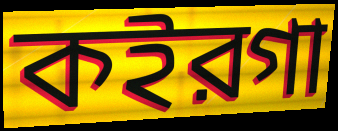
কইরগা